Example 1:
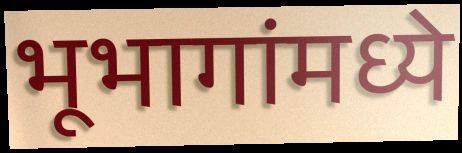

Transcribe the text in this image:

भूभागांमध्ये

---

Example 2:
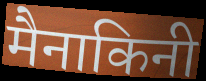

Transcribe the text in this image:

मैनाकिनी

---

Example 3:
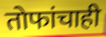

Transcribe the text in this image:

तोफांचाही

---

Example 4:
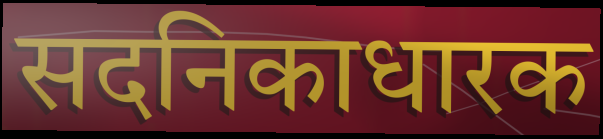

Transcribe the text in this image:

सदनिकाधारक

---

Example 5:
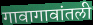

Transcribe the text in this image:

गावागावांतली